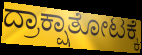
ದ್ರಾಕ್ಷಾತೋಟಕ್ಕೆ